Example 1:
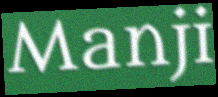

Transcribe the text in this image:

Manji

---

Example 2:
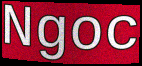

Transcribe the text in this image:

Ngoc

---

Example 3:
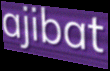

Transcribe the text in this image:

ajibat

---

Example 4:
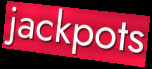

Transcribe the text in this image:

jackpots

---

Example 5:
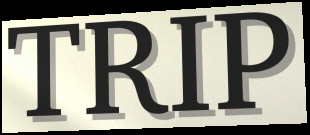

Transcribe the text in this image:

TRIP